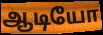
ஆடியோ